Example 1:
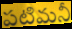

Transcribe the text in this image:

పటిమనీ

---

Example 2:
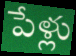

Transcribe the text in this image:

పేళ్లు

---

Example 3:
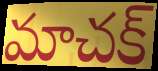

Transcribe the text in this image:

మాచక్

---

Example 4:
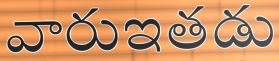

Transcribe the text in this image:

వారుఇతడు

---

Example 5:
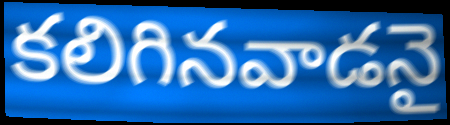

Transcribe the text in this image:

కలిగినవాడనై